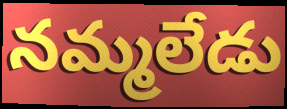
నమ్మలేడు